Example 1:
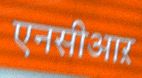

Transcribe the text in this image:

एनसीआऱ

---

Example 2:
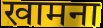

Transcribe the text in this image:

खामना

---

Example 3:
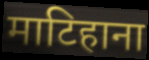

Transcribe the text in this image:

माटिहाना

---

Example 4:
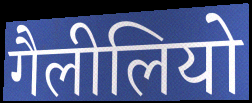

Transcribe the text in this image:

गैलीलियो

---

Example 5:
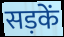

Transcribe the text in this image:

सड़कें